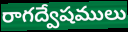
రాగద్వేషములు